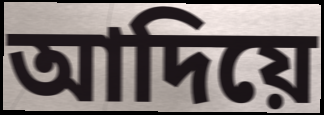
আদিয়ে